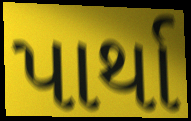
પાર્થા